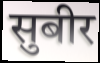
सुबीर